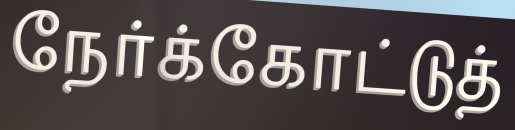
நேர்க்கோட்டுத்